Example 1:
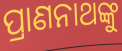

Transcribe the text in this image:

ପ୍ରାଣନାଥଙ୍କୁ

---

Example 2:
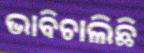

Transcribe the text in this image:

ଭାବିଚାଲିଛି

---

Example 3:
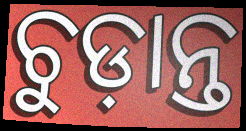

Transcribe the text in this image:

ଚୁଡ଼ାନ୍ତ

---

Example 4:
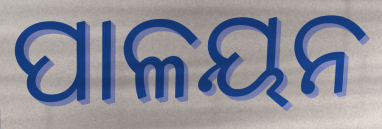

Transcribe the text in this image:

ପାଳୟନ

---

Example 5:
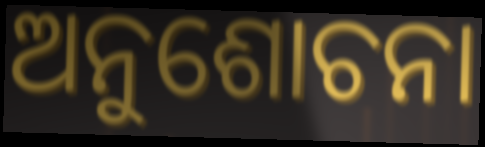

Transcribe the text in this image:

ଅନୁଶୋଚନା